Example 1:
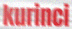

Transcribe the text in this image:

kurinci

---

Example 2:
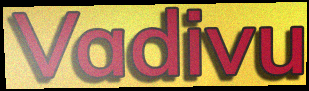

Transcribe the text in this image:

Vadivu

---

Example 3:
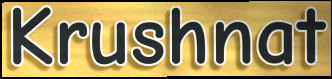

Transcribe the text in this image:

Krushnat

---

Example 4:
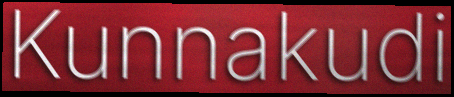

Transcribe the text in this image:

Kunnakudi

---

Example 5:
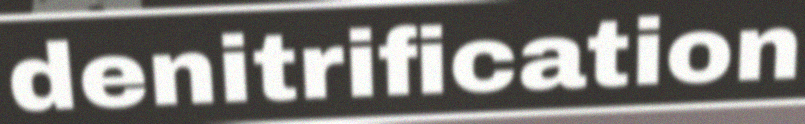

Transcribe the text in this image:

denitrification